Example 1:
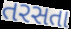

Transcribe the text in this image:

તરસતા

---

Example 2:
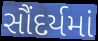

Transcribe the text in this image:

સૌંદર્યમાં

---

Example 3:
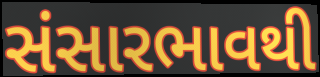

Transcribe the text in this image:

સંસારભાવથી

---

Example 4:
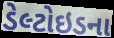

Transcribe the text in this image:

ડેલ્ટોઇડના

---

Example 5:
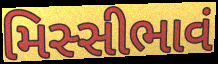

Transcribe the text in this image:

મિસ્સીભાવં